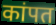
कांपत